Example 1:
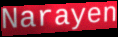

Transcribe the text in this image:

Narayen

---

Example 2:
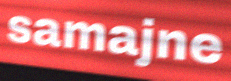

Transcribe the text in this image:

samajne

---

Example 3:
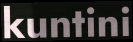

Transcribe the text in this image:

kuntini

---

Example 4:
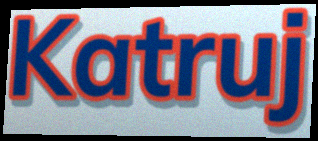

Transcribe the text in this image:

Katruj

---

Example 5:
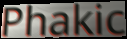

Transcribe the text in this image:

Phakic